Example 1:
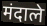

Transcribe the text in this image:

मंदाले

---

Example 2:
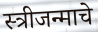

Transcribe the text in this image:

स्त्रीजन्माचे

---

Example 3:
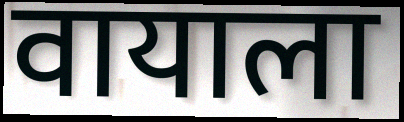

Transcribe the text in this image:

वायाला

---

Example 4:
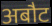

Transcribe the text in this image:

अबौट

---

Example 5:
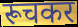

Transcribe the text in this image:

रूचकर